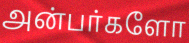
அன்பர்களோ